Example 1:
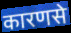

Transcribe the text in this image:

कारणसे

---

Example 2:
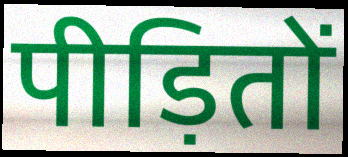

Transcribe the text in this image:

पीड़ितों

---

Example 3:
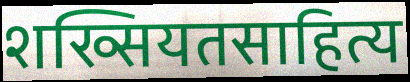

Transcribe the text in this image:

शख्सियतसाहित्य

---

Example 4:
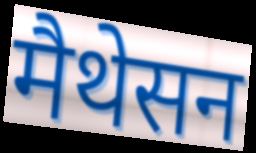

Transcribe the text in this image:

मैथेसन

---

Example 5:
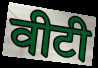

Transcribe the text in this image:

वीटी